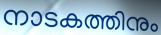
നാടകത്തിനും